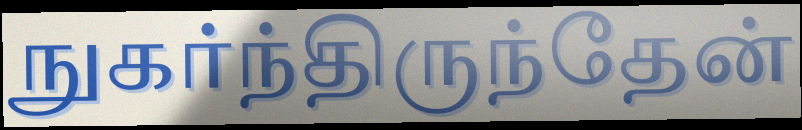
நுகர்ந்திருந்தேன்